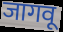
जागवू